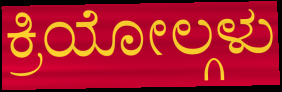
ಕ್ರಿಯೋಲ್ಗಳು